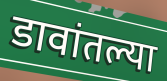
डावांतल्या